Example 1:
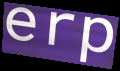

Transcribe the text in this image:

erp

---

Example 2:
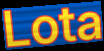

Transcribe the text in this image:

Lota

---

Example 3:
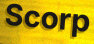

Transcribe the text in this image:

Scorp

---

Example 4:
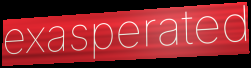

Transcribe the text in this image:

exasperated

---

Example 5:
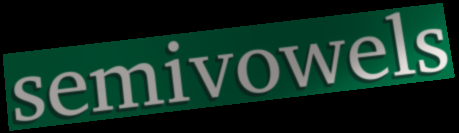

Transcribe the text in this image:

semivowels